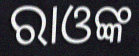
ରାଓଙ୍କ